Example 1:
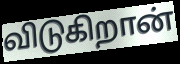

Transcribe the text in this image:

விடுகிறான்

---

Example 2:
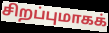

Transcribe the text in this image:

சிறப்புமாகக்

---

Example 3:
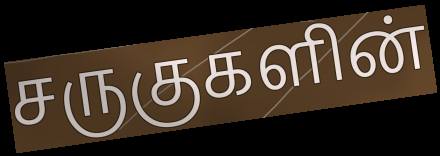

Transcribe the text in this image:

சருகுகளின்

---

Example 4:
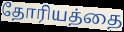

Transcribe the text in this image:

தோரியத்தை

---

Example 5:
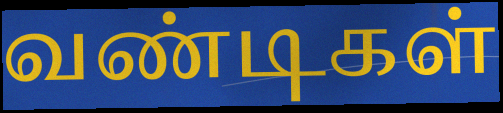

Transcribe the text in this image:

வண்டிகள்